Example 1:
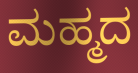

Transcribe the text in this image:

ಮಹ್ಮದ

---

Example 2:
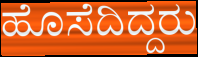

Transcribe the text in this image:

ಹೊಸೆದಿದ್ದರು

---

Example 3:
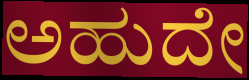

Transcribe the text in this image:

ಅಹುದೇ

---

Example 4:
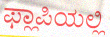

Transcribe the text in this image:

ಫ್ಲಾಪಿಯಲ್ಲಿ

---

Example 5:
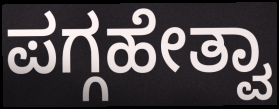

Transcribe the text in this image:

ಪಗ್ಗಹೇತ್ವಾ